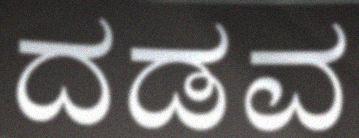
ದಡವ